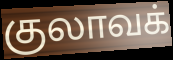
குலாவக்